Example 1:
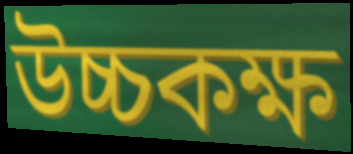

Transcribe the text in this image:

উচ্চকক্ষ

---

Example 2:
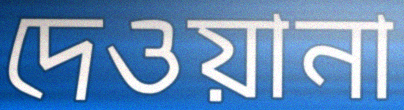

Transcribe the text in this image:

দেওয়ানা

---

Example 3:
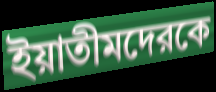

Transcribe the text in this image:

ইয়াতীমদেরকে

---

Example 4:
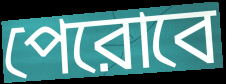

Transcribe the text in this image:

পেরোবে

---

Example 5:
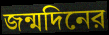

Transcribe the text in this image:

জন্মদিনের